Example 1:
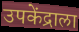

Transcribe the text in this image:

उपकेंद्राला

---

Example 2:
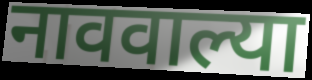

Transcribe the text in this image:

नाववाल्या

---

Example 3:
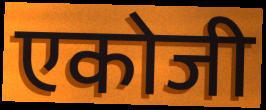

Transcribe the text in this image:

एकोजी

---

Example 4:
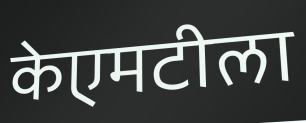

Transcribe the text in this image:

केएमटीला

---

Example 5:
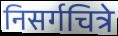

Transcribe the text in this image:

निसर्गचित्रे